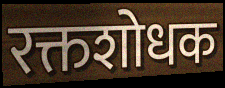
रक्तशोधक